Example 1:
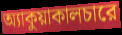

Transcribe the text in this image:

অ্যাকুয়াকালচারে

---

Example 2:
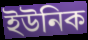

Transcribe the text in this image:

ইউনিক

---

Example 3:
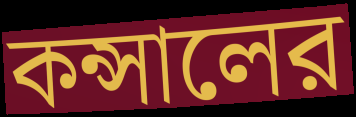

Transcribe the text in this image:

কন্সালের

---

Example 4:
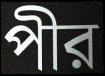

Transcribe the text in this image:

পীর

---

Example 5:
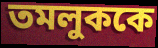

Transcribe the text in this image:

তমলুককে